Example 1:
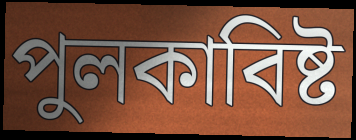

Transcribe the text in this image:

পুলকাবিষ্ট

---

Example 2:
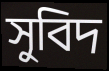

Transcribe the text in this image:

সুবিদ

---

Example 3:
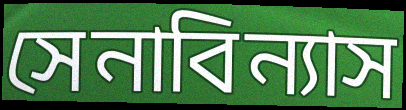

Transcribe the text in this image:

সেনাবিন্যাস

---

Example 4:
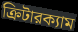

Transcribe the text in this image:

ক্রিটারক্যাম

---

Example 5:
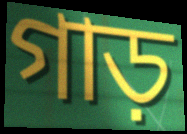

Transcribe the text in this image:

গাড়